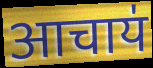
आचाय॑